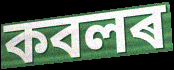
কবলৰ